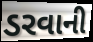
ડરવાની